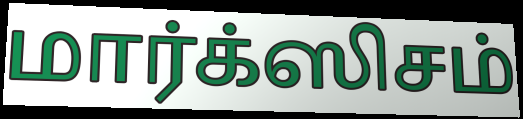
மார்க்ஸிசம்